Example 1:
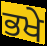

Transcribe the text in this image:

ਭਖੇ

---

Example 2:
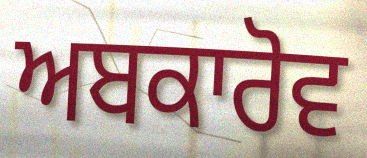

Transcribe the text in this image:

ਅਬਕਾਰੋਵ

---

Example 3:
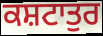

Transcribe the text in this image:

ਕਸ਼ਟਾਤੁਰ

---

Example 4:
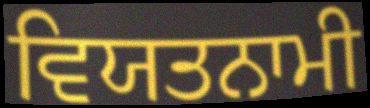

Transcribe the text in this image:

ਵਿਯਤਨਾਮੀ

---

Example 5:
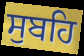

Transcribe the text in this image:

ਸੁਬਹਿ